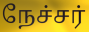
நேச்சர்